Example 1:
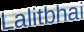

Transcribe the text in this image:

Lalitbhai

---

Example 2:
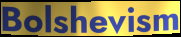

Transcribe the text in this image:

Bolshevism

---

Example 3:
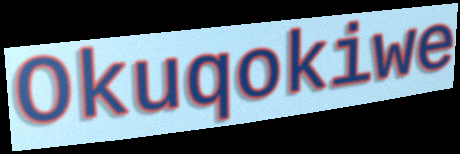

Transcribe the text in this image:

Okuqokiwe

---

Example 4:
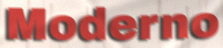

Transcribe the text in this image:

Moderno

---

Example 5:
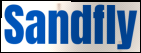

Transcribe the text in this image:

Sandfly